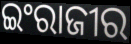
ଇଂରାଜୀର